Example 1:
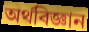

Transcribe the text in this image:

অৰ্থবিজ্ঞান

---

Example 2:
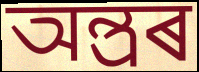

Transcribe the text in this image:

অন্ত্ৰৰ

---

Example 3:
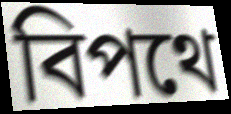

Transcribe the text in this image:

বিপথে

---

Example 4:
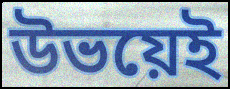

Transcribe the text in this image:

উভয়েই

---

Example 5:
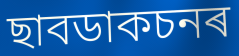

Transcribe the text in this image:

ছাবডাকচনৰ